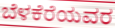
ಬೆಳಕೆರೆಯವರ